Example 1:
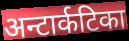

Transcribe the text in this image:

अन्टार्कटिका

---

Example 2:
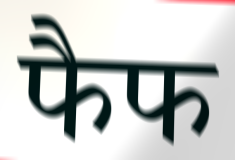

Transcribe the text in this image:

फैफ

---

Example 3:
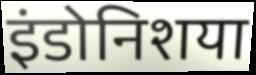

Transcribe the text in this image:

इंडोनिशया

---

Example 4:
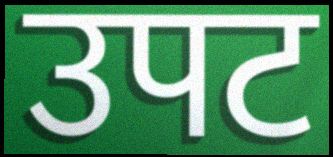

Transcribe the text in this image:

उपट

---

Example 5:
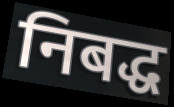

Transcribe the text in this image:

निबद्ध